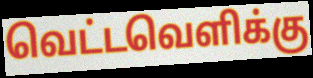
வெட்டவெளிக்கு